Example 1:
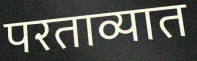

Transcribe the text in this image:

परताव्यात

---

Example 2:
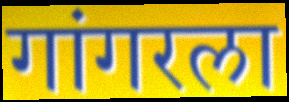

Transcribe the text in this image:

गांगरला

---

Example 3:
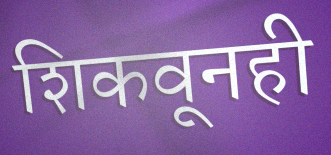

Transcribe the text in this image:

शिकवूनही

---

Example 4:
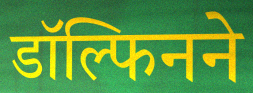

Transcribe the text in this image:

डॉल्फिनने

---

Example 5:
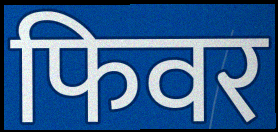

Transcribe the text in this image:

फिवर